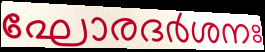
ഘോരദർശനഃ